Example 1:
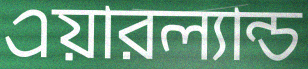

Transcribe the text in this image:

এয়ারল্যান্ড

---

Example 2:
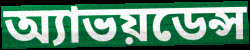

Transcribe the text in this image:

অ্যাভয়ডেন্স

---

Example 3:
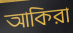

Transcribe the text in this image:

আকিরা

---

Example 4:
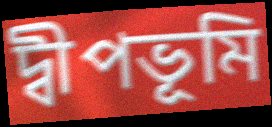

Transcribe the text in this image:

দ্বীপভূমি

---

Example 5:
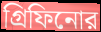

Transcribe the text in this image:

গ্রিফিনোর